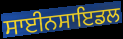
ਸਾਈਨਸਾਇਡਲ